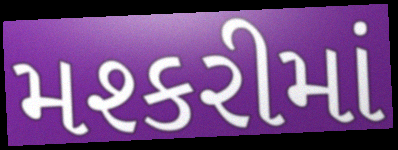
મશ્કરીમાં